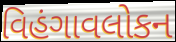
વિહંગાવલોકન